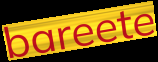
bareete